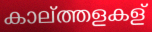
കാല്ത്തളകള്